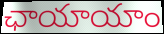
ఛాయాయాం